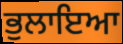
ਭੁਲਾਇਆ